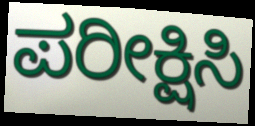
ಪರೀಕ್ಷಿಸಿ